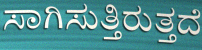
ಸಾಗಿಸುತ್ತಿರುತ್ತದೆ